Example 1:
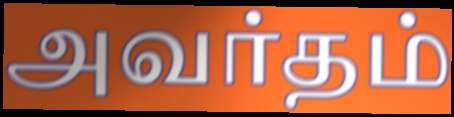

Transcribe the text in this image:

அவர்தம்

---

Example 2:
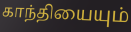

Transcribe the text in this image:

காந்தியையும்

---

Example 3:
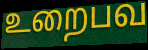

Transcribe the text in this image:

உறைபவ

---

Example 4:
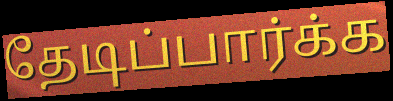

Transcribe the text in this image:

தேடிப்பார்க்க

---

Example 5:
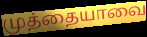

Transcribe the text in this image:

முத்தையாவை